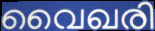
വൈഖരി